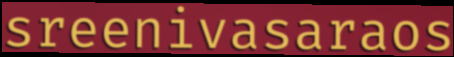
sreenivasaraos